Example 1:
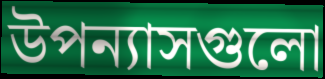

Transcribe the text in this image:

উপন্যাসগুলো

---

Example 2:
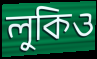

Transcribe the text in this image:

লুকিও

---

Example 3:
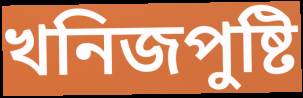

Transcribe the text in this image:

খনিজপুষ্টি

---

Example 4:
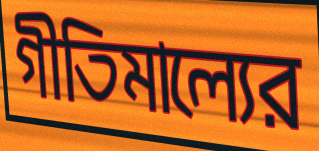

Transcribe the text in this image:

গীতিমাল্যের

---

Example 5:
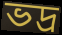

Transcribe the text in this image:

ভদ্র